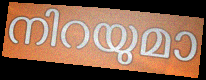
നിറയുമാ